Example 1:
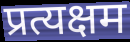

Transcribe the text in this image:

प्रत्यक्षम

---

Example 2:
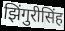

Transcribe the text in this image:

झिंगुरीसिंह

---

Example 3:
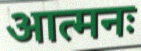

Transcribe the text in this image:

आत्मनः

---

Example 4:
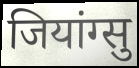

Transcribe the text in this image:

जियांग्सु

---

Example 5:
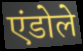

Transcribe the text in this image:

एंडोले